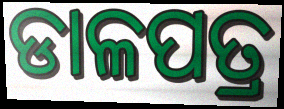
ଡାଳପତ୍ର